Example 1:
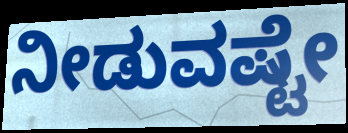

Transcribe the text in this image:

ನೀಡುವಷ್ಟೇ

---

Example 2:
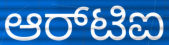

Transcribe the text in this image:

ಆರ್‌ಟಿಐ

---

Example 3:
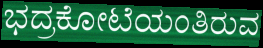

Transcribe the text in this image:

ಭದ್ರಕೋಟೆಯಂತಿರುವ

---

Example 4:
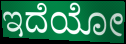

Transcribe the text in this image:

ಇದೆಯೋ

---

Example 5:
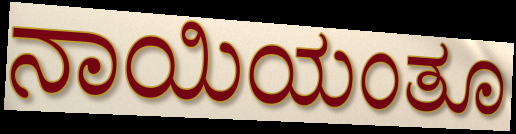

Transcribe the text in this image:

ನಾಯಿಯಂತೂ